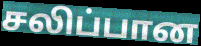
சலிப்பான